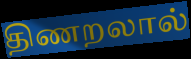
திணறலால்